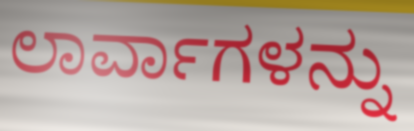
ಲಾರ್ವಾಗಳನ್ನು